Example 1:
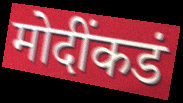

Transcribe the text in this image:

मोदींकडं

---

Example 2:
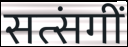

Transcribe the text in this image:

सत्संगीं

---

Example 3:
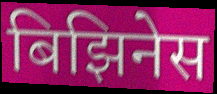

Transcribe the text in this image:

बिझिनेस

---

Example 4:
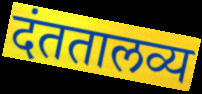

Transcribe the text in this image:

दंततालव्य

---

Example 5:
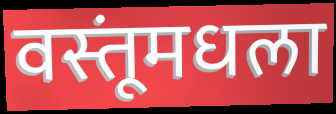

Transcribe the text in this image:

वस्तूंमधला